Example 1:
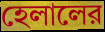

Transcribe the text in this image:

হেলালের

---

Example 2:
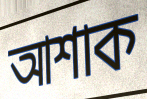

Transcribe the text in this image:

আশাক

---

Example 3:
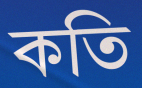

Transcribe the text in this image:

কতি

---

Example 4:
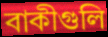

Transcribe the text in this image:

বাকীগুলি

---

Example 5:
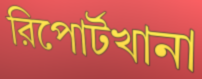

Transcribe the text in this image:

রিপোর্টখানা